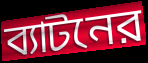
ব্যাটনের